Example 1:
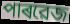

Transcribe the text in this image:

পাৰৱেজ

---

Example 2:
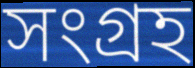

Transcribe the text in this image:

সংগ্ৰহ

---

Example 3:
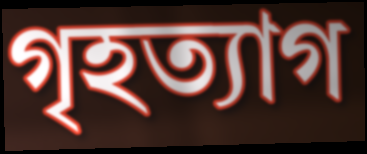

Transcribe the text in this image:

গৃহত্যাগ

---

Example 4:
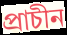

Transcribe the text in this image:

প্ৰাচীন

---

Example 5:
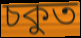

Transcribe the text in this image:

চকুত